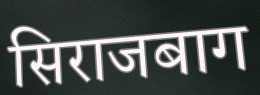
सिराजबाग